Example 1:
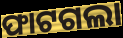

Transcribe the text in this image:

ଫାଟଗଲା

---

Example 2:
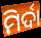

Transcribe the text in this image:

ମିର୍ଦା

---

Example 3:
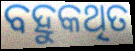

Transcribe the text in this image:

ବହୁକଥିତ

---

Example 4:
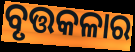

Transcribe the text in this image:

ବୃତ୍ତକଳାର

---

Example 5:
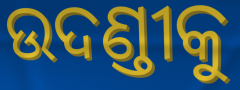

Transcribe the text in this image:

ଉଦଣ୍ଡୀକୁ